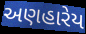
અણહારેય